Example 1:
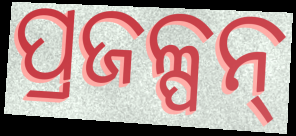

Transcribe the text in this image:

ପ୍ରଜଳ୍ପନ୍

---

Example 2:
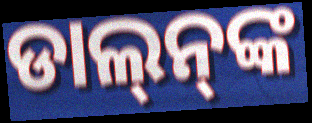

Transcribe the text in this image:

ଡାଲ୍‌ନ୍‌ଙ୍କ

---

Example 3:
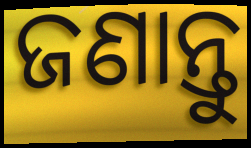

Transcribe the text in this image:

ଜଣାନ୍ତୁ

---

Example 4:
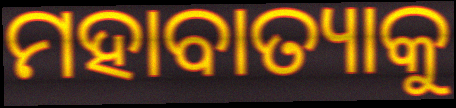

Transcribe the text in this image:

ମହାବାତ୍ୟାକୁ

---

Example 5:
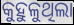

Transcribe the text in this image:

କୁହୁଳୁଥିଲା